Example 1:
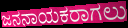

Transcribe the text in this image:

ಜನನಾಯಕರಾಗಲು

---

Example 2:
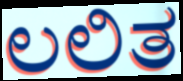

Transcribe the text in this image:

ಲಲಿತ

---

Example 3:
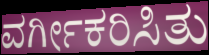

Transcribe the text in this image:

ವರ್ಗೀಕರಿಸಿತು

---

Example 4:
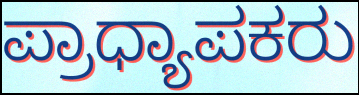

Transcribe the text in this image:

ಪ್ರಾಧ್ಯಾಪಕರು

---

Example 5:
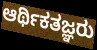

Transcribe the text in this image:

ಆರ್ಥಿಕತಜ್ಞರು